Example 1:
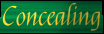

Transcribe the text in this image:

Concealing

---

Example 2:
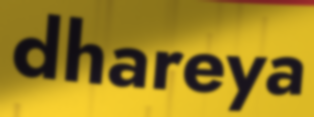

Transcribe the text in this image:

dhareya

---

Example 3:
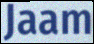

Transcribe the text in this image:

Jaam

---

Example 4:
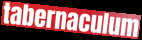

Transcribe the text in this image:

tabernaculum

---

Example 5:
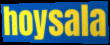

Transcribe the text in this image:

hoysala